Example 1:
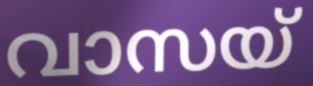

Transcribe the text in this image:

വാസയ്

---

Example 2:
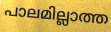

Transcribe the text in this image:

പാലമില്ലാത്ത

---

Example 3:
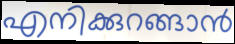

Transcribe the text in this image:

എനിക്കുറങ്ങാൻ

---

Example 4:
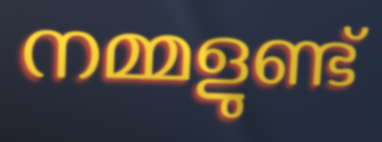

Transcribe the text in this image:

നമ്മളുണ്ട്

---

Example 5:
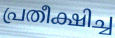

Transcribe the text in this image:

പ്രതീക്ഷിച്ച